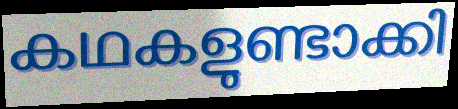
കഥകളുണ്ടാക്കി